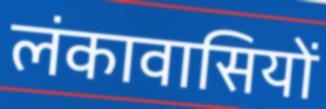
लंकावासियों